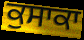
ਕੁਸਾਕਾ